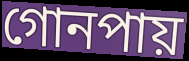
গোনপায়